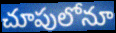
చూపులోనూ